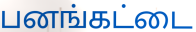
பனங்கட்டை